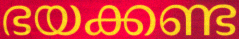
ഭയക്കണ്ട